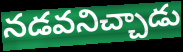
నడవనిచ్చాడు